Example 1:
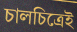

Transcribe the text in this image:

চালচিত্রেই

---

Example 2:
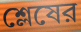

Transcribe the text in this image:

শ্লেষের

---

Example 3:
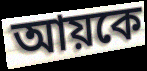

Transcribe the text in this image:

আয়কে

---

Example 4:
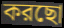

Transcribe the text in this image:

করছো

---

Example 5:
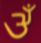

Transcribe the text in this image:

ঔঁ